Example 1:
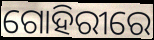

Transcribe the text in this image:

ଗୋହିରୀରେ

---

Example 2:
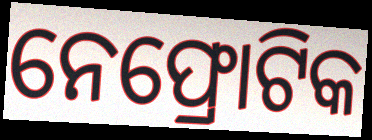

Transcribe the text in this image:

ନେଫ୍ରୋଟିକ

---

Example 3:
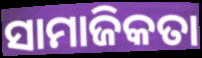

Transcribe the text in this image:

ସାମାଜିକତା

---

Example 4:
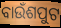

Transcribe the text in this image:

ବାଉଁଶପୁଟ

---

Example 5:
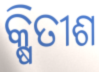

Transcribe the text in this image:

କ୍ଷିତୀଶ